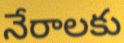
నేరాలకు